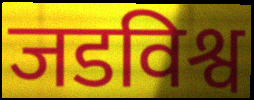
जडविश्व